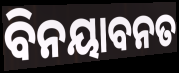
ବିନୟାବନତ